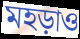
মহড়াও